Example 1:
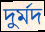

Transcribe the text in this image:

দুর্মদ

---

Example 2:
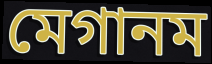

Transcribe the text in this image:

মেগানম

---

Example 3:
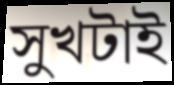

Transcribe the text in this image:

সুখটাই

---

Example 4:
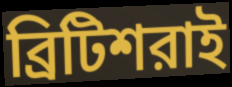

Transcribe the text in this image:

ব্রিটিশরাই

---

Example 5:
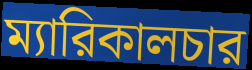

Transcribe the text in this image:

ম্যারিকালচার